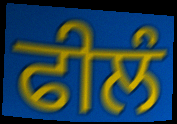
ਫੀਲੰ